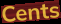
Cents